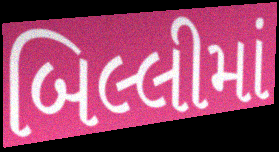
બિલ્લીમાં